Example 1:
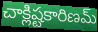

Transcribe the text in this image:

చాక్లిష్టకారిణమ్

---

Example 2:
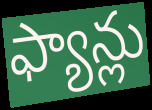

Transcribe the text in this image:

ఫ్యాన్లు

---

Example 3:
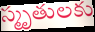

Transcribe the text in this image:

స్మృతులకు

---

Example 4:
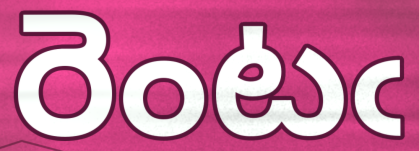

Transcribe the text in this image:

రెంటఁ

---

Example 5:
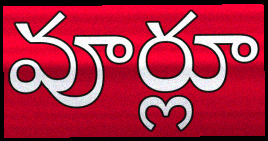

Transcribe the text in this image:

వూర్లూ